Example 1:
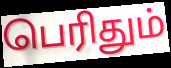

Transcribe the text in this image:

பெரிதும்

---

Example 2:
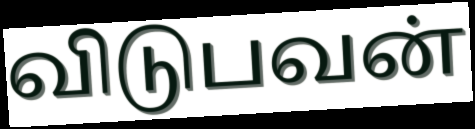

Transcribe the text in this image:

விடுபவன்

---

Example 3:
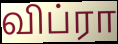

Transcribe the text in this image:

விப்ரா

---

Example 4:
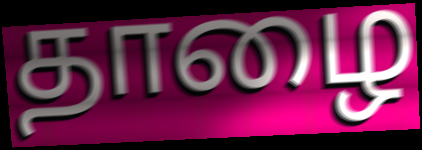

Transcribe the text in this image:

தாழை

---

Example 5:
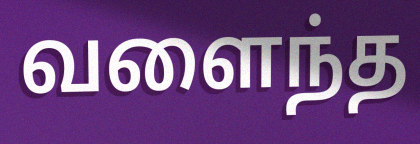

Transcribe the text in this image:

வளைந்த